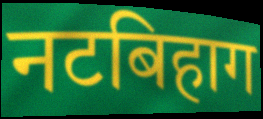
नटबिहाग